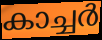
കാച്ചർ